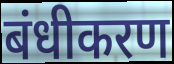
बंधीकरण